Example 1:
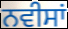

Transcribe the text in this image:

ਨਵੀਸਾਂ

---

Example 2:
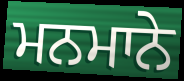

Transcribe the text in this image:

ਮਨਮਾਨੇ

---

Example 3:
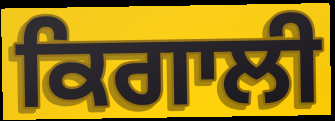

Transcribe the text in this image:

ਕਿਗਾਲੀ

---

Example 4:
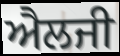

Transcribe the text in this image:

ਐਲਜੀ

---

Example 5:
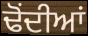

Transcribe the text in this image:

ਢੋਂਦੀਆਂ